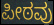
ಪೀಠವು